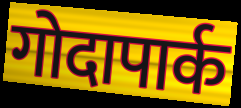
गोदापार्क